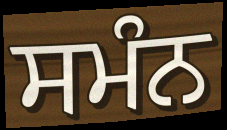
ਸਮੰਨ